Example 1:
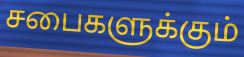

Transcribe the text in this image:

சபைகளுக்கும்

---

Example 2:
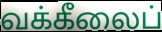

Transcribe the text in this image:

வக்கீலைப்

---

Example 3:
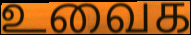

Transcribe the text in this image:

உவைக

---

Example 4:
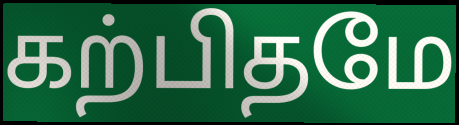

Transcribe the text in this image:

கற்பிதமே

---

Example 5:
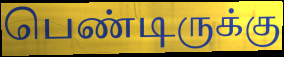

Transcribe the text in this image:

பெண்டிருக்கு